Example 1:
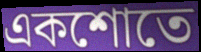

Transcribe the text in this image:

একশোতে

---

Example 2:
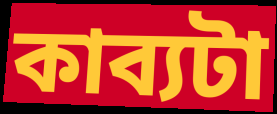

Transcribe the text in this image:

কাব্যটা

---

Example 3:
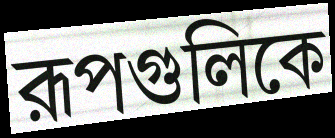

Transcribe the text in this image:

রূপগুলিকে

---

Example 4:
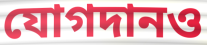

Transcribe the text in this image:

যোগদানও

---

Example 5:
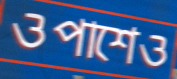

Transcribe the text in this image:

ওপাশেও